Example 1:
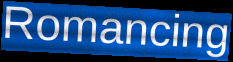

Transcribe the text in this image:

Romancing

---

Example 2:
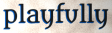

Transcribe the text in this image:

playfully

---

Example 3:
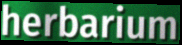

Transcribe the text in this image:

herbarium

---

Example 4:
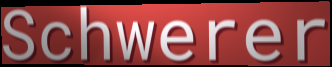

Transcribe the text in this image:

Schwerer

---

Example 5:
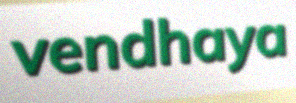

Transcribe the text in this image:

vendhaya